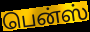
பென்ஸ்